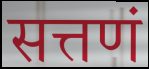
सत्तणं